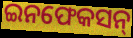
ଇନଫେକସନ୍